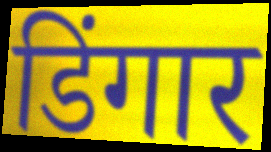
डिंगार